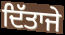
ਦਿੱਤਾਜੇ